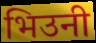
भिउनी